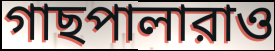
গাছপালারাও